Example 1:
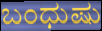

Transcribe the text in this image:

ಬಂಧುಷು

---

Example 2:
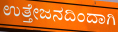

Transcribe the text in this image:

ಉತ್ತೇಜನದಿಂದಾಗಿ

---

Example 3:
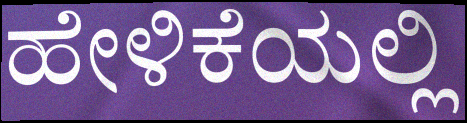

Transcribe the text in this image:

ಹೇಳಿಕೆಯಲ್ಲಿ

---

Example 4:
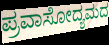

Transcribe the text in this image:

ಪ್ರವಾಸೋದ್ಯಮದ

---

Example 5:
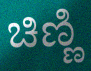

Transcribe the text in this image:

ಚಿಣ್ಣಿ